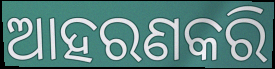
ଆହରଣକରି